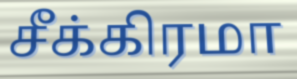
சீக்கிரமா